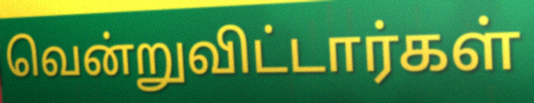
வென்றுவிட்டார்கள்